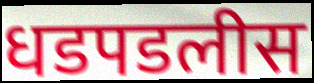
धडपडलीस